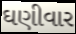
ઘણીવાર